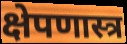
क्षेपणास्त्र